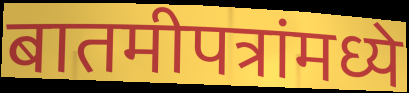
बातमीपत्रांमध्ये